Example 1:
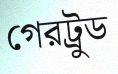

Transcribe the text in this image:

গেরট্রুড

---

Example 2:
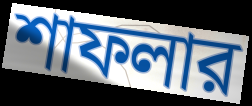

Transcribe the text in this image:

শাফলার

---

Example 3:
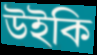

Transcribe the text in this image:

উইকি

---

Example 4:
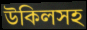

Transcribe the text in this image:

উকিলসহ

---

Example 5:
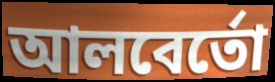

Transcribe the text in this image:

আলবের্তো